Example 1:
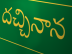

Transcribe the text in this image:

దచ్చినాన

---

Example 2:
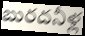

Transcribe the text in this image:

బురదనీళ్ల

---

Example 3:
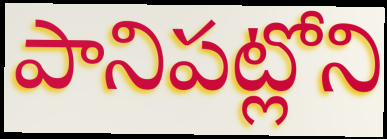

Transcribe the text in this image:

పానిపట్లోని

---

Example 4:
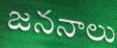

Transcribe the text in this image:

జననాలు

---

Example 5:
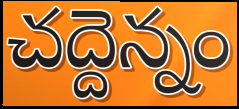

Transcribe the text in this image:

చద్దెన్నం